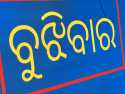
ବୁଝିବାର